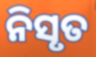
ନିସୃତ